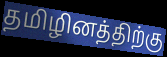
தமிழினத்திற்கு